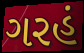
ગરહં